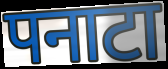
पनाटा